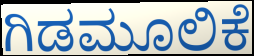
ಗಿಡಮೂಲಿಕೆ